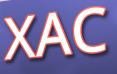
XAC